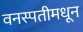
वनस्पतीमधून